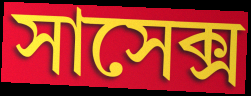
সাসেক্স